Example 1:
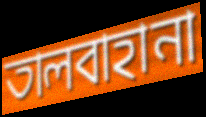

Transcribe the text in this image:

তালবাহানা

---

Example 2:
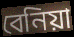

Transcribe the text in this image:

বেনিয়া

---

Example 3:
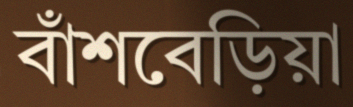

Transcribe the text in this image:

বাঁশবেড়িয়া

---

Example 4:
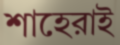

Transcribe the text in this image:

শাহেরাই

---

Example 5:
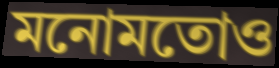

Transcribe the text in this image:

মনোমতোও